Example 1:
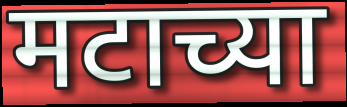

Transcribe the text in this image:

मटाच्या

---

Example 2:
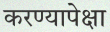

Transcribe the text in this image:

करण्यापेक्षा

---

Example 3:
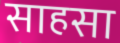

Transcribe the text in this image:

साहसा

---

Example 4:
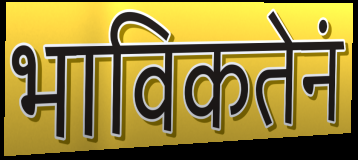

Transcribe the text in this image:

भाविकतेनं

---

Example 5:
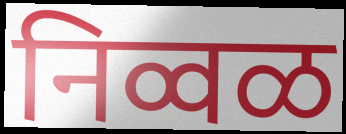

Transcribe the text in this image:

निव्वळ